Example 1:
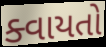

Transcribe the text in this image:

ક્વાયતો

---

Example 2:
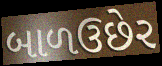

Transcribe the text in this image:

બાળઉછેર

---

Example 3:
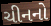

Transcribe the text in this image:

ચીનનો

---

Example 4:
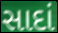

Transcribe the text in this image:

સાદાં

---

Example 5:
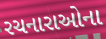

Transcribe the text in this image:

રચનારાઓના